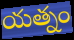
యత్నం